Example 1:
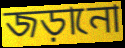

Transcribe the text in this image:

জড়ানো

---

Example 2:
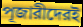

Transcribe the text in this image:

পূজারীদেরই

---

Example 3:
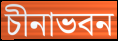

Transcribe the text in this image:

চীনাভবন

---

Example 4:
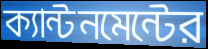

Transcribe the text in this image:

ক্যান্টনমেন্টের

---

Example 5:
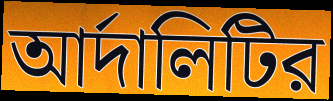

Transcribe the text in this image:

আর্দালিটির